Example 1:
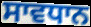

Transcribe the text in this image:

ਸਾਵਧਾਨ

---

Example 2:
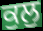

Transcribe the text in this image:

ਕੁਲੁ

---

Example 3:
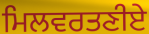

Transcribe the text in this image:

ਮਿਲਵਰਤਣੀਏ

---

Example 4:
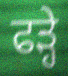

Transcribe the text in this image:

ਫੜ੍ਹੇ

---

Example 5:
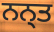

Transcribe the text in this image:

ਨਨ੍ਤ